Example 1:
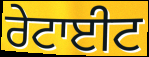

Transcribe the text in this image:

ਰੇਟਾਈਟ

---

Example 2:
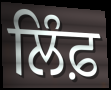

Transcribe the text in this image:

ਲਿੰਫ਼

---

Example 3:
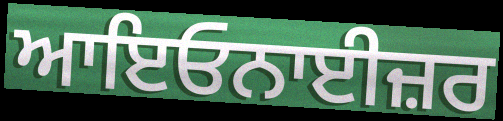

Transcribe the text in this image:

ਆਇਓਨਾਈਜ਼ਰ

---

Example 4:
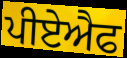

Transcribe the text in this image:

ਪੀਏਐਫ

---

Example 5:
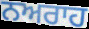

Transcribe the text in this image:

ਨਅਰਾਹ